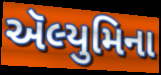
ઍલ્યુમિના